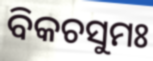
ବିକଚସୁମଃ